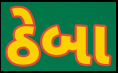
ઠેબા